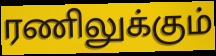
ரணிலுக்கும்